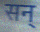
सन्